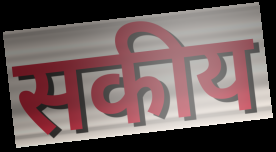
सकीय